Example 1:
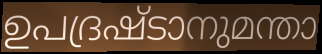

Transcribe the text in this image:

ഉപദ്രഷ്ടാനുമന്താ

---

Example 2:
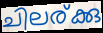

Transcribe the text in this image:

ചിലര്ക്കു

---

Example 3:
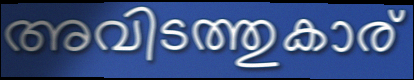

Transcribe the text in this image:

അവിടത്തുകാര്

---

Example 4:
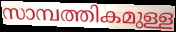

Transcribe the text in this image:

സാമ്പത്തികമുള്ള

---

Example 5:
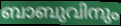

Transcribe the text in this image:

ബാബുവിനും